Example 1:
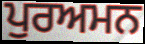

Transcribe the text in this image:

ਪੁਰਅਮਨ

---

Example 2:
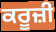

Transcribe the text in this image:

ਕਰੂਜ਼ੀ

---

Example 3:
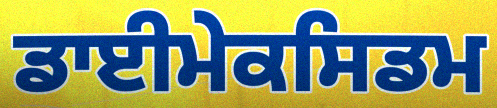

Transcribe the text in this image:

ਡਾਈਮੇਕਸਿਡਮ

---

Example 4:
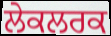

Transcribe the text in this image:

ਲੇਕਲਰਕ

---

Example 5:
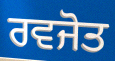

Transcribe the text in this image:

ਰਵਜੋਤ